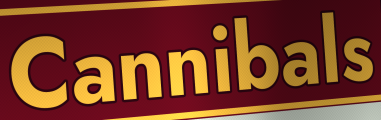
Cannibals